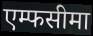
एम्फसीमा